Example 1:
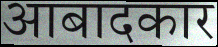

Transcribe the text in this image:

आबादकार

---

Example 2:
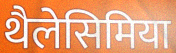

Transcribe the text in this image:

थैलेसिमिया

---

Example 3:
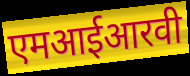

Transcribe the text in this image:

एमआईआरवी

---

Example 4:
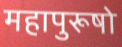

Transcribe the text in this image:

महापुरूषो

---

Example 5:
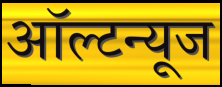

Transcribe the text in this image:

ऑल्टन्यूज